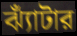
ঝ্যাঁটার